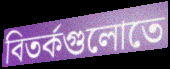
বিতর্কগুলোতে